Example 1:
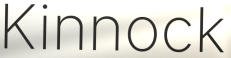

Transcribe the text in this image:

Kinnock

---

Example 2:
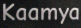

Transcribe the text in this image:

Kaamya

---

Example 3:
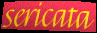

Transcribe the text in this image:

sericata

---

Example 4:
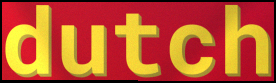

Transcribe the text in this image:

dutch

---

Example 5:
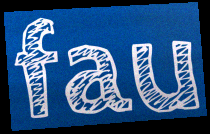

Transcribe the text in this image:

fau